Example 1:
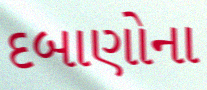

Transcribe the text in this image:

દબાણોના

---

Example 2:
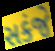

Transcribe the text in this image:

સકંજે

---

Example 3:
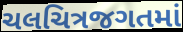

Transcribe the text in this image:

ચલચિત્રજગતમાં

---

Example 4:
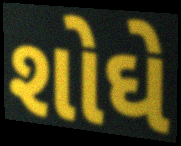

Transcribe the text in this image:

શોઘે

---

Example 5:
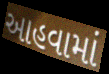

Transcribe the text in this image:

આહવામાં